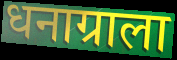
धनाग्राला